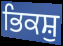
ਭਿਕਸ਼ੁ